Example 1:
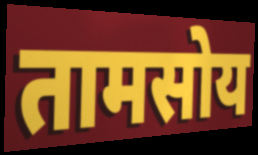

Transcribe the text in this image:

तामसोय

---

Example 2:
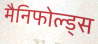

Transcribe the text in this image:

मैनिफोल्ड्स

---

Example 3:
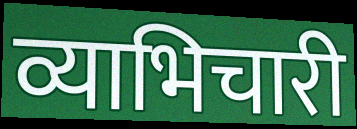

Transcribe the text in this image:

व्याभिचारी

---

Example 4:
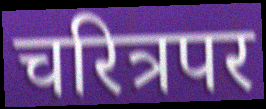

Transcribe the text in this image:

चरित्रपर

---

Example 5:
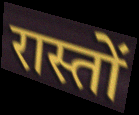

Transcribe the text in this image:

रास्तों